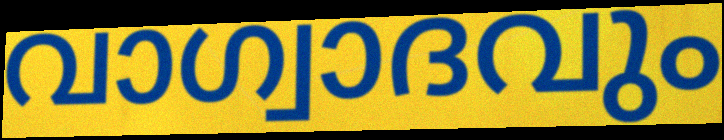
വാഗ്വാദവും